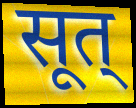
सूत्